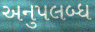
અનુપલબ્ધ